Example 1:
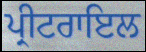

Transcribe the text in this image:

ਪ੍ਰੀਟਰਾਇਲ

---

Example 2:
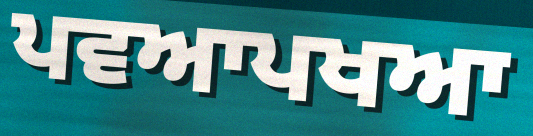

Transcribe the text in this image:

ਪਵਆਪਖਆ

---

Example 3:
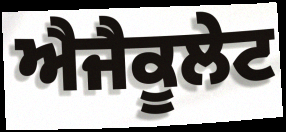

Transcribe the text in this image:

ਐਜੈਕੂਲੇਟ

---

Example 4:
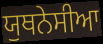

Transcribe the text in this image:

ਯੁਥਨੇਸੀਆ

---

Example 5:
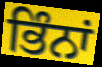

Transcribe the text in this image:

ਭਿੰਨਾਂ